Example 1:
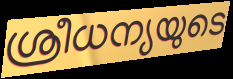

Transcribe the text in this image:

ശ്രീധന്യയുടെ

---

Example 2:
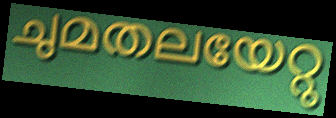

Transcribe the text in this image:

ചുമതലയേറ്റു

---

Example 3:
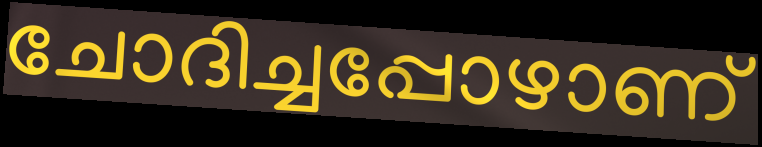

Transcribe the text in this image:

ചോദിച്ചപ്പോഴാണ്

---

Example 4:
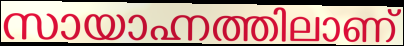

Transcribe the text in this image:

സായാഹ്നത്തിലാണ്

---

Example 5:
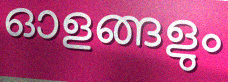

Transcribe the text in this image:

ഓളങ്ങളും